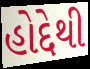
હોદ્દેથી